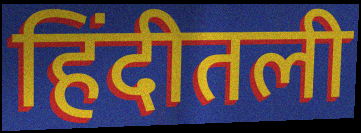
हिंदीतली